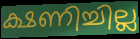
ക്ഷണിച്ചില്ല